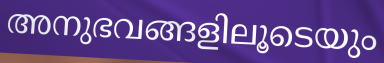
അനുഭവങ്ങളിലൂടെയും